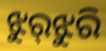
ଝୁର୍‌ଝୁରି